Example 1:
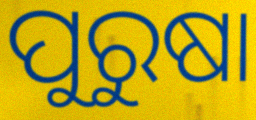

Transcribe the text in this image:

ପୁରୁଷା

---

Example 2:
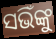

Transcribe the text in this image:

ସଭିଁଙ୍କୁ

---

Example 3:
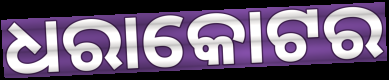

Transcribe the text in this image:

ଧରାକୋଟର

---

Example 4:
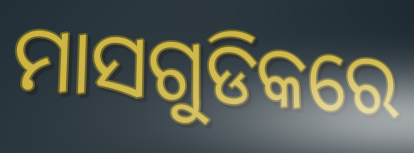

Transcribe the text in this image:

ମାସଗୁଡିକରେ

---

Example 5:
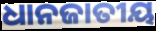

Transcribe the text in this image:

ଧାନଜାତୀୟ